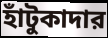
হাঁটুকাদার